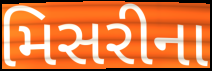
મિસરીના